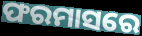
ଫରମାସରେ